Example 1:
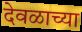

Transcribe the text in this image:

देवळाच्या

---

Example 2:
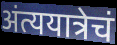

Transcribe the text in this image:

अंत्ययात्रेचं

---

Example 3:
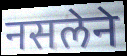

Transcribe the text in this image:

नसलेने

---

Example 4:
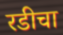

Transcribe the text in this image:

रडीचा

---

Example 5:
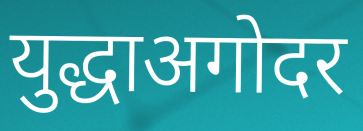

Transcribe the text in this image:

युद्धाअगोदर